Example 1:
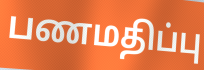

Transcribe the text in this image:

பணமதிப்பு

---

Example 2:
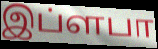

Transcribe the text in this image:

இப்ளபா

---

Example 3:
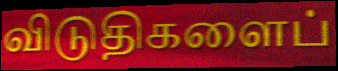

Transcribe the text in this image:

விடுதிகளைப்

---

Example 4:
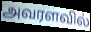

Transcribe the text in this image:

அவரளவில்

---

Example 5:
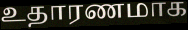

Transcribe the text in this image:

உதாரணமாக